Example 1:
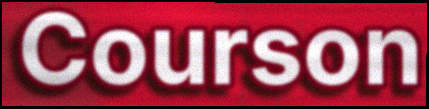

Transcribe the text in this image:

Courson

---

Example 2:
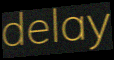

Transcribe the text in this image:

delay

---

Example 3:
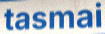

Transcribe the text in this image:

tasmai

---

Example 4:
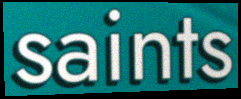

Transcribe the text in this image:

saints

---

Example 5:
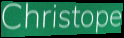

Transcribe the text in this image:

Christope